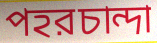
পহরচান্দা